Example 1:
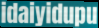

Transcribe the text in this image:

idaiyidupu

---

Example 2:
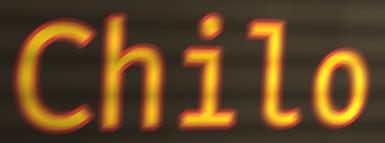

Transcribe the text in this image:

Chilo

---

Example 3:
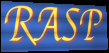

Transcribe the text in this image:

RASP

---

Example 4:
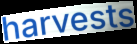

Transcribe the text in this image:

harvests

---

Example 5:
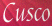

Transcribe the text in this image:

Cusco